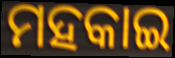
ମହକାଇ